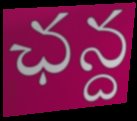
ఛన్ద